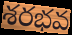
శరభవ